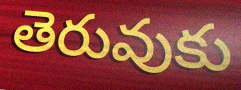
తెరువుకు